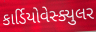
કાર્ડિયોવેસ્ક્યુલર